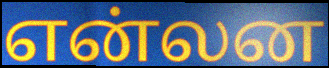
என்லன